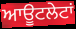
ਆਊਟਲੇਟਾਂ